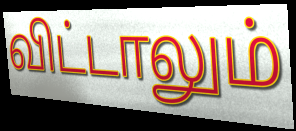
விட்டாலும்